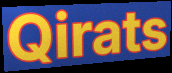
Qirats